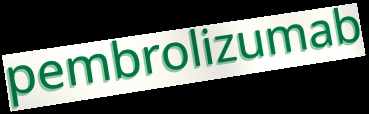
pembrolizumab